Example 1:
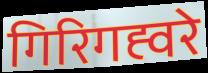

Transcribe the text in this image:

गिरिगह्वरे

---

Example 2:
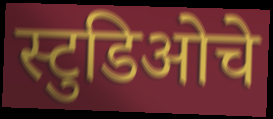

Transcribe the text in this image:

स्टुडिओचे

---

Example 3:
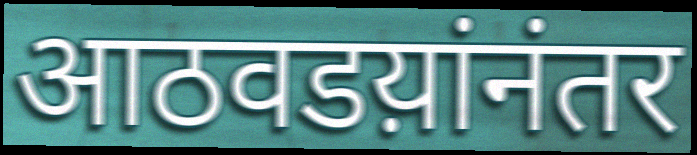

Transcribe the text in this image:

आठवडय़ांनंतर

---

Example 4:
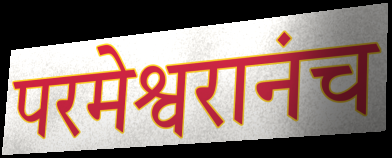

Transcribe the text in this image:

परमेश्वरानंच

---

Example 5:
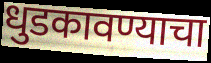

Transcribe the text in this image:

धुडकावण्याचा